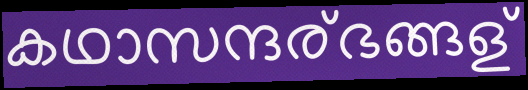
കഥാസന്ദര്ഭങ്ങള്